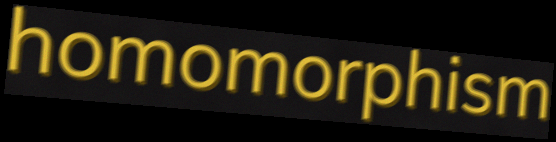
homomorphism